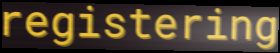
registering